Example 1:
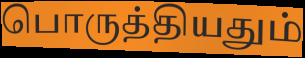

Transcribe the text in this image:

பொருத்தியதும்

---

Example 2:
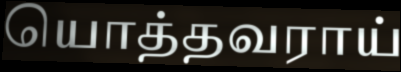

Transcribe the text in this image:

யொத்தவராய்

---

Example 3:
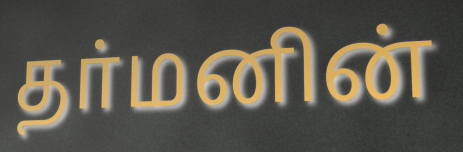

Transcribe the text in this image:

தர்மனின்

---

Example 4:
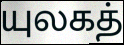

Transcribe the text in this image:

யுலகத்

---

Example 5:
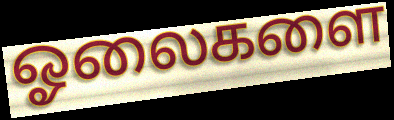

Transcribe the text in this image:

ஓலைகளை